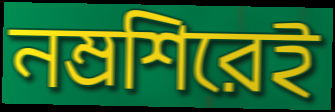
নম্রশিরেই